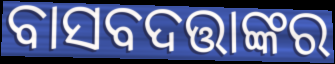
ବାସବଦତ୍ତାଙ୍କର